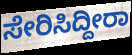
ಸೇರಿಸಿದ್ದೀರಾ